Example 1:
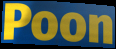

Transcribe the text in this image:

Poon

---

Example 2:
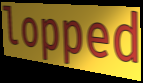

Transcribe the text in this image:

lopped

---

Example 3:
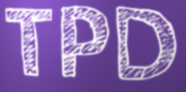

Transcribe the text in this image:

TPD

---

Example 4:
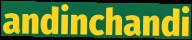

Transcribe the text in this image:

andinchandi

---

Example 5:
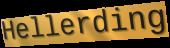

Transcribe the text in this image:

Hellerding